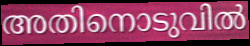
അതിനൊടുവിൽ